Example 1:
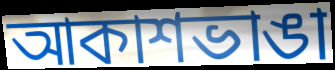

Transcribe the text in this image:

আকাশভাঙা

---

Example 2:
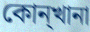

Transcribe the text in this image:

কোন্খানা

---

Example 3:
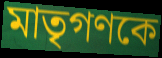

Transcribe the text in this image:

মাতৃগণকে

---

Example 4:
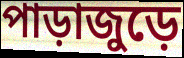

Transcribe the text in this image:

পাড়াজুড়ে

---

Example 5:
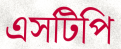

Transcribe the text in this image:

এসটিপি